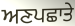
ਅਣਪਛਾਤੇ